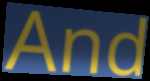
And